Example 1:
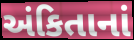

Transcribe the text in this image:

અંકિતાનાં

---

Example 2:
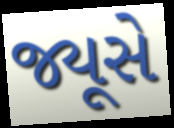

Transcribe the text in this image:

જ્યૂસે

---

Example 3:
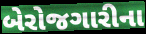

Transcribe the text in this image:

બેરોજગારીના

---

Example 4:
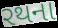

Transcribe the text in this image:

રથના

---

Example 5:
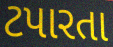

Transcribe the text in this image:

ટપારતા